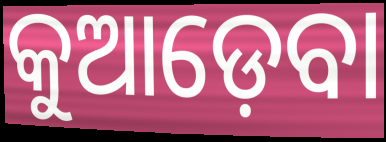
କୁଆଡ଼େବା